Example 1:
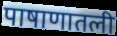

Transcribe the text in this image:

पाषाणातली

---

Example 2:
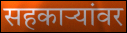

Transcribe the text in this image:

सहकार्‍यांवर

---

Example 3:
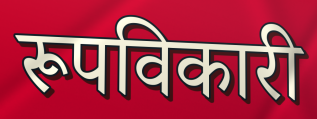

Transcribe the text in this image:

रूपविकारी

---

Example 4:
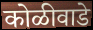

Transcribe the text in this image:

कोळीवाडे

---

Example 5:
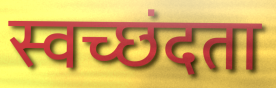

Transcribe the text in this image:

स्वच्छंदता